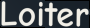
Loiter